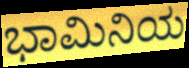
ಭಾಮಿನಿಯ